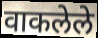
वाकलेले